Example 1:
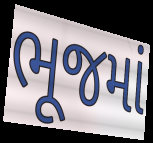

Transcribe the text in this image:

ભૂજમાં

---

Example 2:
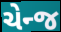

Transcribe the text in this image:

ચેન્જ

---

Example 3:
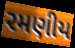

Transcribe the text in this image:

રમણીય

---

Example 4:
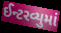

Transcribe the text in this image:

ઈન્ટરવ્યુમાં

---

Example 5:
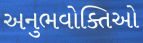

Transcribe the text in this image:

અનુભવોક્તિઓ